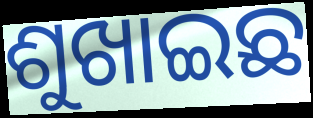
ଶୁଖାଇଛ